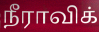
நீராவிக்